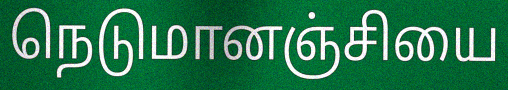
நெடுமானஞ்சியை